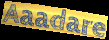
Aaadare